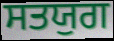
ਸਤਯੁਗ